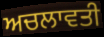
ਅਚਲਾਵਤੀ